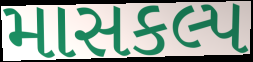
માસકલ્પ